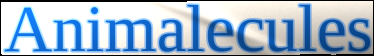
Animalecules